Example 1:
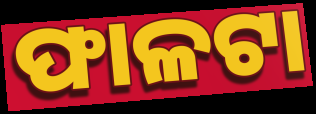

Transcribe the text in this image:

ଫାଳଟା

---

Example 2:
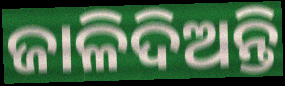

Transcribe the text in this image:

ଜାଳିଦିଅନ୍ତି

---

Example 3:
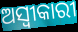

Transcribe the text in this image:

ଅସ୍ୱୀକାରୀ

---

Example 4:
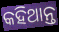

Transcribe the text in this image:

କହିଥାନ୍ତ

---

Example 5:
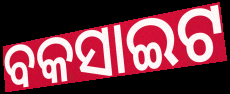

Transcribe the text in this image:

ବକସାଇଟ